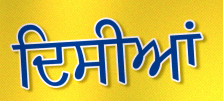
ਦਿਸੀਆਂ